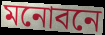
মনোবনে